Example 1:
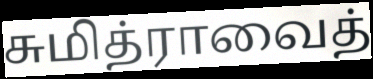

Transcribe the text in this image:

சுமித்ராவைத்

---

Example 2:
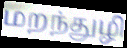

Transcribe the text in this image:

மறந்துழி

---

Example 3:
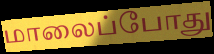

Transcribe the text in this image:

மாலைப்போது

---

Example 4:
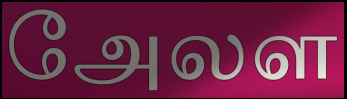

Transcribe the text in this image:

அேலள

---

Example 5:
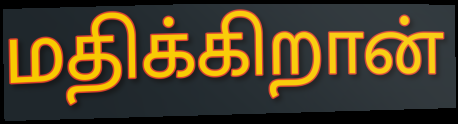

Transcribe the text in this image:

மதிக்கிறான்